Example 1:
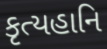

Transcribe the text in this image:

કૃત્યહાનિ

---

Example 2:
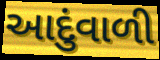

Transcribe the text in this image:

આદુંવાળી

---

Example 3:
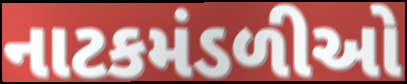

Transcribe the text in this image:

નાટકમંડળીઓ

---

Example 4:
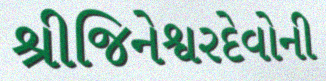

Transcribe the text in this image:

શ્રીજિનેશ્વરદેવોની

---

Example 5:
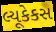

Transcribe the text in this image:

લ્યૂકેકસ